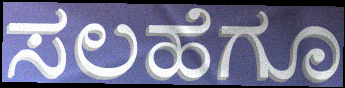
ಸಲಹೆಗೂ